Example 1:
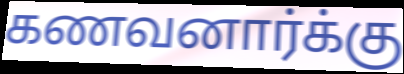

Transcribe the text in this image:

கணவனார்க்கு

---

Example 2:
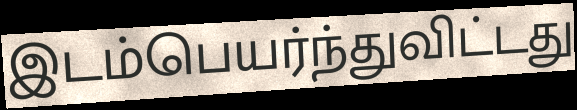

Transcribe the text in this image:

இடம்பெயர்ந்துவிட்டது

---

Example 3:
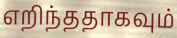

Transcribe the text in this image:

எறிந்ததாகவும்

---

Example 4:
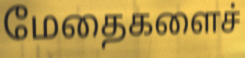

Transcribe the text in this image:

மேதைகளைச்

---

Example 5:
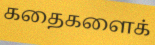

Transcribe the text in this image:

கதைகளைக்